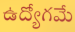
ఉద్యోగమే